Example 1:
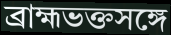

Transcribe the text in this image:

ব্রাহ্মভক্তসঙ্গে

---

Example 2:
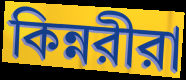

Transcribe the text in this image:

কিন্নরীরা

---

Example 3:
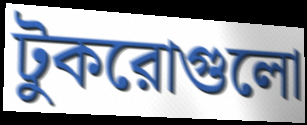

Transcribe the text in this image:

টুকরোগুলো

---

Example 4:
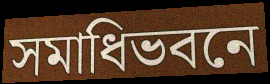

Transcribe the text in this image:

সমাধিভবনে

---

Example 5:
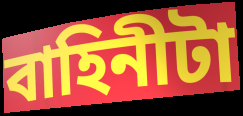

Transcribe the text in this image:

বাহিনীটা